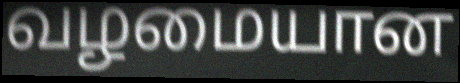
வழமையான